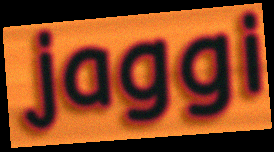
jaggi